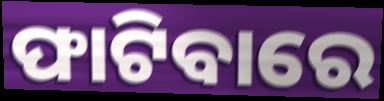
ଫାଟିବାରେ